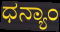
ಧನ್ಯಾಂ